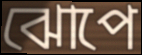
ঝোপে